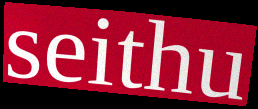
seithu